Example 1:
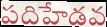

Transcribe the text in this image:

పదిహేడవ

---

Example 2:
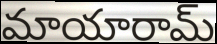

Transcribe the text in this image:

మాయారామ్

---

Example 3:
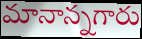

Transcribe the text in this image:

మానాన్నగారు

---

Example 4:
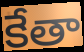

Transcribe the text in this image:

కేతా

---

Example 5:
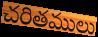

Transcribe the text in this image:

చరితములు